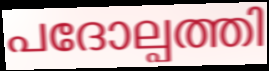
പദോല്പത്തി